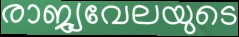
രാജ്യവേലയുടെ